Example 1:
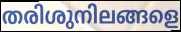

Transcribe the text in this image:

തരിശുനിലങ്ങളെ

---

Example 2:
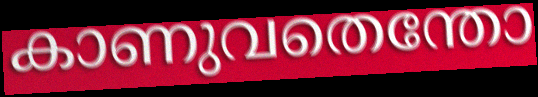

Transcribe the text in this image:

കാണുവതെന്തോ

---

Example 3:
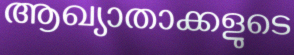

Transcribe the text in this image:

ആഖ്യാതാക്കളുടെ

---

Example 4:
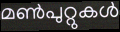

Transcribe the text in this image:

മൺപുറ്റുകൾ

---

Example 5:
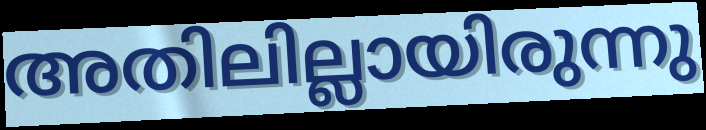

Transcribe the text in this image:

അതിലില്ലായിരുന്നു